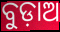
ବୁଡ଼ାଅ